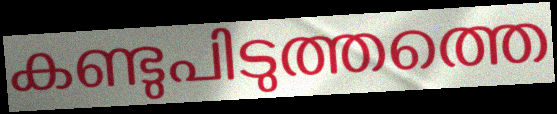
കണ്ടുപിടുത്തത്തെ